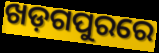
ଖଡ଼ଗପୁରରେ